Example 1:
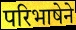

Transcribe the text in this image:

परिभाषेने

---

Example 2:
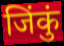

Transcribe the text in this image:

जिंकुं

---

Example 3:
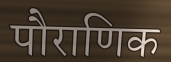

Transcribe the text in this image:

पौराणिक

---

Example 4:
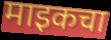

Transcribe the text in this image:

माइकचा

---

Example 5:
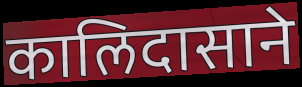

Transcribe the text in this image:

कालिदासाने